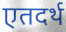
एतदर्थ